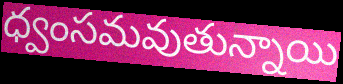
ధ్వంసమవుతున్నాయి